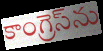
కాంగ్రెస్‌ను